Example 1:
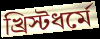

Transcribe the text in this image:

খ্রিস্টধর্মে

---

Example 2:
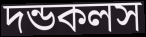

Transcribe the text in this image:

দন্ডকলস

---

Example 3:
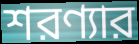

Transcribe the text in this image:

শরণ্যার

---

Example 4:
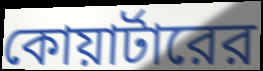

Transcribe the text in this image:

কোয়ার্টারের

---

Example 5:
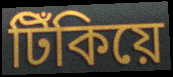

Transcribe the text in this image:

টিঁকিয়ে